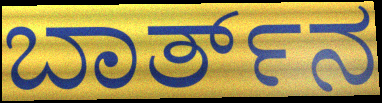
ಬಾರ್ತ್‌ನ